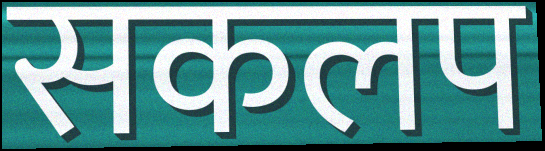
सकलप